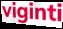
viginti